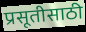
प्रसूतीसाठी